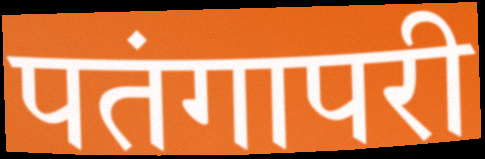
पतंगापरी